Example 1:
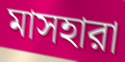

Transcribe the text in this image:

মাসহারা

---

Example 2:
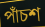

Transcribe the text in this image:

পাঁচশ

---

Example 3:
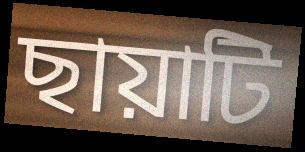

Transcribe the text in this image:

ছায়াটি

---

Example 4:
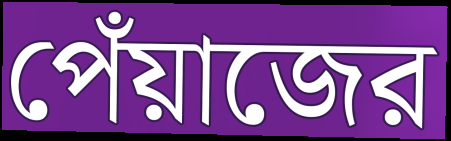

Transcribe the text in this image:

পেঁয়াজের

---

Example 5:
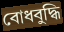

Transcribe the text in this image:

বোধবুদ্ধি